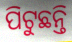
ପିଟୁଛନ୍ତି